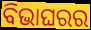
ବିଭାଘରର